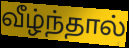
வீழ்ந்தால்